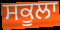
ਸਕੂਲਾ